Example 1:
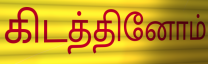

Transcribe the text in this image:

கிடத்தினோம்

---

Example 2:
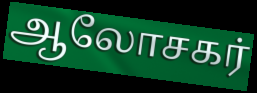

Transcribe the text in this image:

ஆலோசகர்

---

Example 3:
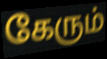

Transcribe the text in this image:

கேரும்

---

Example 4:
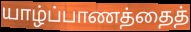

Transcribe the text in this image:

யாழ்ப்பாணத்தைத்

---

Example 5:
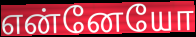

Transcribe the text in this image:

என்னேயோ